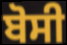
ਬੋਸੀ